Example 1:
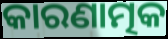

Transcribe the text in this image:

କାରଣାତ୍ମକ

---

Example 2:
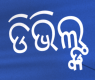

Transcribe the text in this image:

ଡିଭିଲ୍ଙ୍କ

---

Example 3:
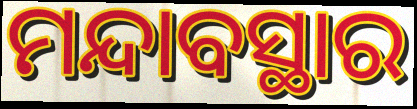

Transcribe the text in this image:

ମନ୍ଦାବସ୍ଥାର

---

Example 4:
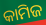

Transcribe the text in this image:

କାମିଜ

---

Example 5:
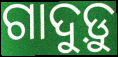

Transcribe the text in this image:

ଗାଦୁଡ଼ୁ